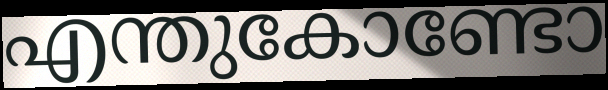
എന്തുകോണ്ടോ